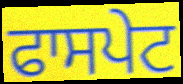
ਫਾਸਪੇਟ